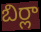
బిర్లా